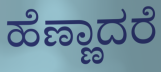
ಹೆಣ್ಣಾದರೆ